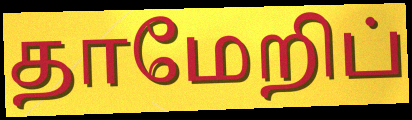
தாமேறிப்